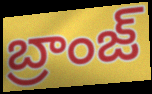
బ్రాంజ్